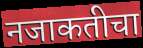
नजाकतीचा